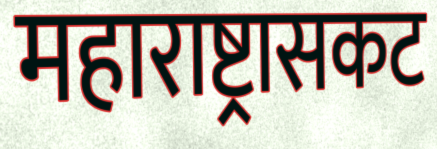
महाराष्ट्रासकट